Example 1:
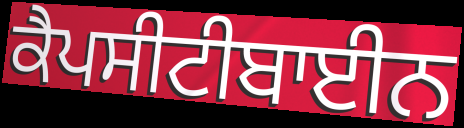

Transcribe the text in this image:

ਕੈਪਸੀਟੀਬਾਈਨ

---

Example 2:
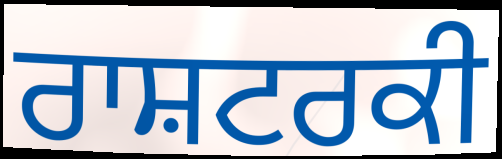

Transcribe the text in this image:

ਰਾਸ਼ਟਰਕੀ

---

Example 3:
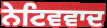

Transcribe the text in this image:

ਨੇਟਿਵਵਾਦ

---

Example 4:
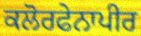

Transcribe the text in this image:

ਕਲੋਰਫੇਨਾਪੀਰ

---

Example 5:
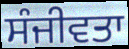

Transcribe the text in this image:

ਸੰਜੀਵਤਾ